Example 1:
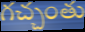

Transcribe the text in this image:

గచ్చంతు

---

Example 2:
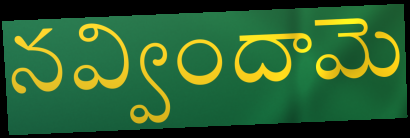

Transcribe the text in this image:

నవ్విందామె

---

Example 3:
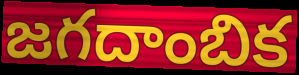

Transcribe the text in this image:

జగదాంబిక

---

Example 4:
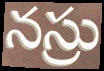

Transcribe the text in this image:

నస్రు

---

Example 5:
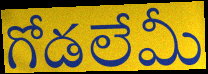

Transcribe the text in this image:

గోడలేమీ